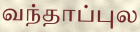
வந்தாப்புல